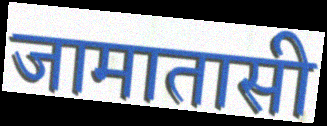
जामातासी